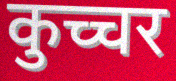
कुच्चर